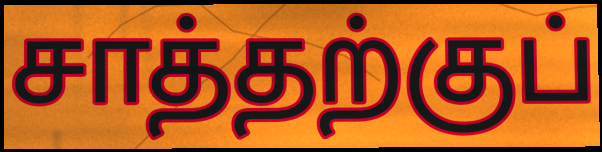
சாத்தற்குப்